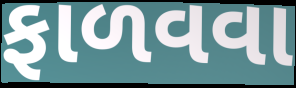
ફાળવવા